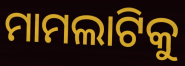
ମାମଲାଟିକୁ